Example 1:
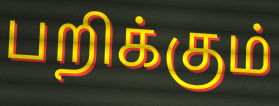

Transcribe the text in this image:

பறிக்கும்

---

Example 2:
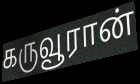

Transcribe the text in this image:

கருவூரான்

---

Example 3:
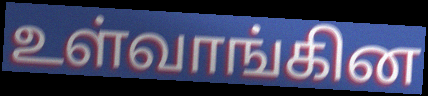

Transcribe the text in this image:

உள்வாங்கின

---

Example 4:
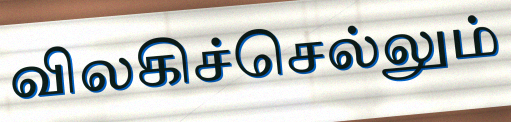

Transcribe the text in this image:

விலகிச்செல்லும்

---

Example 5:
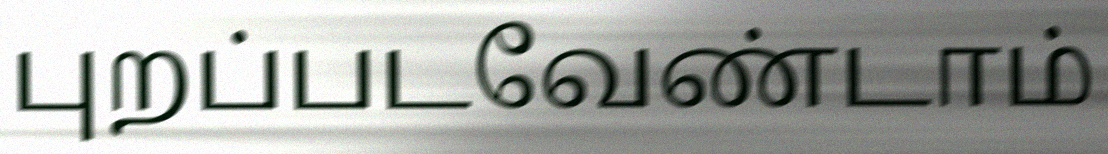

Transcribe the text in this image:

புறப்படவேண்டாம்